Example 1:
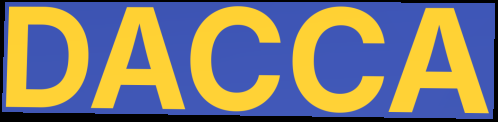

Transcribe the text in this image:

DACCA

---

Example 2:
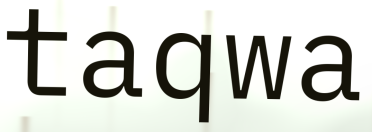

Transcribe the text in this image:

taqwa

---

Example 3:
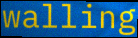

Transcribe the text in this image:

walling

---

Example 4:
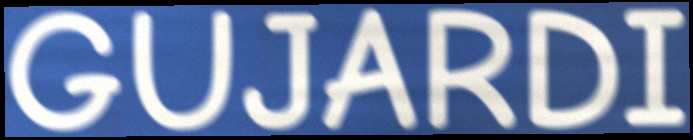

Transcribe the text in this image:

GUJARDI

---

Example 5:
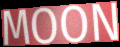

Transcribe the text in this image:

MOON